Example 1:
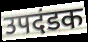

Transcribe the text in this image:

उपदंडक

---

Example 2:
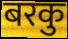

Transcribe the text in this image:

बरकु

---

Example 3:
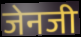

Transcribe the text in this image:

जेनजी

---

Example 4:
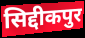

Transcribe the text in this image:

सिद्दीकपुर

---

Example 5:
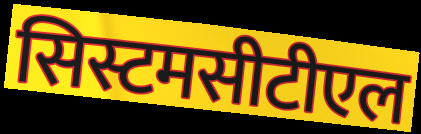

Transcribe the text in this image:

सिस्टमसीटीएल